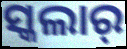
ସ୍କଲାର୍